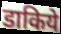
डाकिये